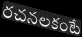
రచనలకంటే